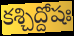
కశ్చిద్దోషః